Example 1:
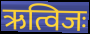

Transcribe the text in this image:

ऋत्विजः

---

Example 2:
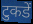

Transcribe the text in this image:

टुकडें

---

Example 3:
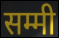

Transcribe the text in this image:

सम्मी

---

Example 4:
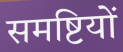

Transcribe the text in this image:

समष्टियों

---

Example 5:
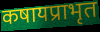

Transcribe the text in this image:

कषायप्राभृत